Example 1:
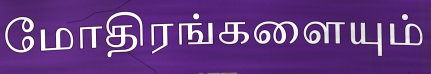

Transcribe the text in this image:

மோதிரங்களையும்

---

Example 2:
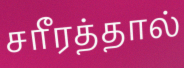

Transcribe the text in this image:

சரீரத்தால்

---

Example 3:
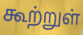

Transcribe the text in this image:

கூற்றுள்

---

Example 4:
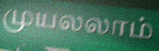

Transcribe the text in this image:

முயலலாம்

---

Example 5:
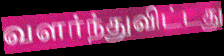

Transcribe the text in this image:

வளர்ந்துவிட்டது